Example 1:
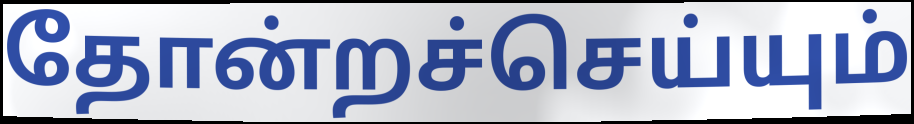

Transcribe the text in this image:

தோன்றச்செய்யும்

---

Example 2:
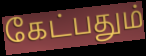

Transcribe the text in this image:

கேட்பதும்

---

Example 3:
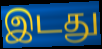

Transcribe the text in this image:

இடது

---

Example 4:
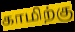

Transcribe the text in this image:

காமிற்கு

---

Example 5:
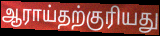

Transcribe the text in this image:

ஆராய்தற்குரியது